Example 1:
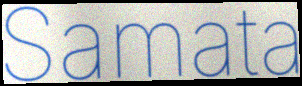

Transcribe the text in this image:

Samata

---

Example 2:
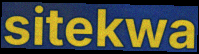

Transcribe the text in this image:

sitekwa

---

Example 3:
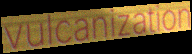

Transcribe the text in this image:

vulcanization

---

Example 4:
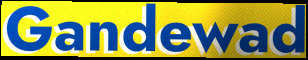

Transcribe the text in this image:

Gandewad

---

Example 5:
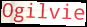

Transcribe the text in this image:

Ogilvie